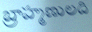
బ్రాహ్మణులది